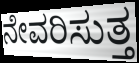
ನೇವರಿಸುತ್ತ